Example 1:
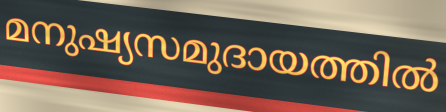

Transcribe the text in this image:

മനുഷ്യസമുദായത്തിൽ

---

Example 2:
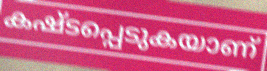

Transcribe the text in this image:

കഷ്ടപ്പെടുകയാണ്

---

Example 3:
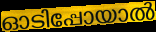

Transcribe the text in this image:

ഓടിപ്പോയാൽ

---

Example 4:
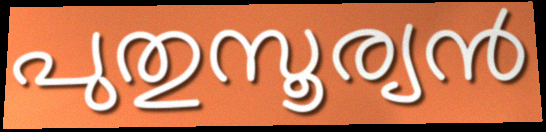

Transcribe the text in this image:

പുതുസൂര്യൻ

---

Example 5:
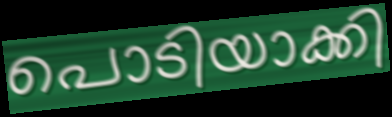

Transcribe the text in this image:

പൊടിയാക്കി